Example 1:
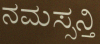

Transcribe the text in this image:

ನಮಸ್ಸನ್ತಿ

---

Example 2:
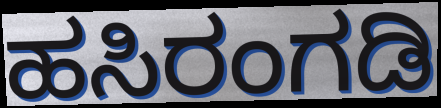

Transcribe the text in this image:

ಹಸಿರಂಗಡಿ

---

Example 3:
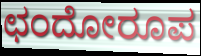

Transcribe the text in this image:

ಛಂದೋರೂಪ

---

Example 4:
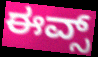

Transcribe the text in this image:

ಈವ್ಸ್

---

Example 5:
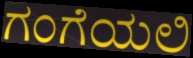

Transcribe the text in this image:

ಗಂಗೆಯಲಿ